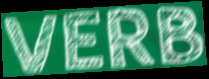
VERB